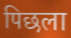
पिछला